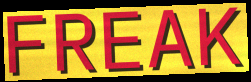
FREAK